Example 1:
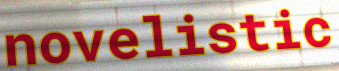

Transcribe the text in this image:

novelistic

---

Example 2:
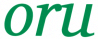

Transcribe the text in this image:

oru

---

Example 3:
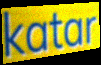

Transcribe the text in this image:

katar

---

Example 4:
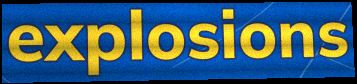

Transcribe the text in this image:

explosions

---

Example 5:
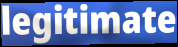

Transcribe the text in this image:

legitimate